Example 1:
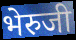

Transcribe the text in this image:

भेरुजी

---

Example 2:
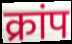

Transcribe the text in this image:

क्रांप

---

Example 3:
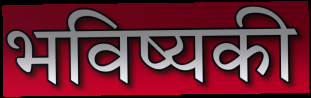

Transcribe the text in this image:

भविष्यकी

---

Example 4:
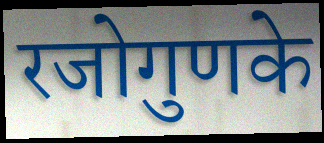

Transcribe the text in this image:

रजोगुणके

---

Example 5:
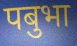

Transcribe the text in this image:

पबुभा